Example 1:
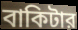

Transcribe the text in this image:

বাকিটার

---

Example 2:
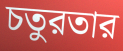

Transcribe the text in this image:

চতুরতার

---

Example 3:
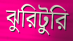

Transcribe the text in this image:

ঝুরিটুরি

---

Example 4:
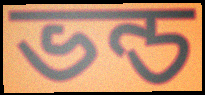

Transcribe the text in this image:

ভন্ড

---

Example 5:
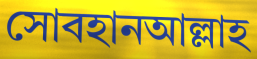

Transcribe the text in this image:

সোবহানআল্লাহ